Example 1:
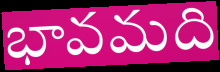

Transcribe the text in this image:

భావమది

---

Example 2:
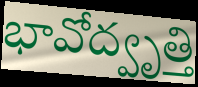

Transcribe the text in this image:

భావోద్వృత్తి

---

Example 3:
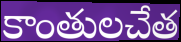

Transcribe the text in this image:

కాంతులచేత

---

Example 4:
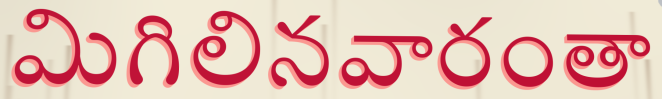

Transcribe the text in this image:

మిగిలినవారంతా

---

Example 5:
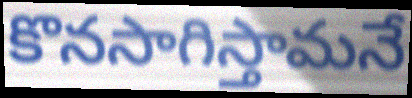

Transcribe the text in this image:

కొనసాగిస్తామనే